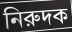
নিরুদক